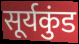
सूर्यकुंड